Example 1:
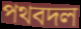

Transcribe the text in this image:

পথবদল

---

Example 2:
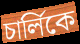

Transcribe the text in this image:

চার্লিকে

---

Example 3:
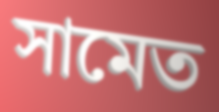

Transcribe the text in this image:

সামেত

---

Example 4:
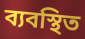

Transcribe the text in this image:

ব্যবস্থিত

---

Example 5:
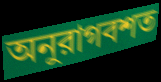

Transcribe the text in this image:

অনুরাগবশত